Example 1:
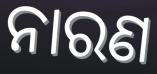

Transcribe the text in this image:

ନାରଣ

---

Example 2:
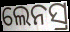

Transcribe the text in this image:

ଲେନସ୍ର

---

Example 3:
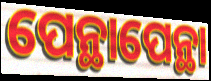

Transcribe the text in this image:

ପେନ୍ଥାପେନ୍ଥା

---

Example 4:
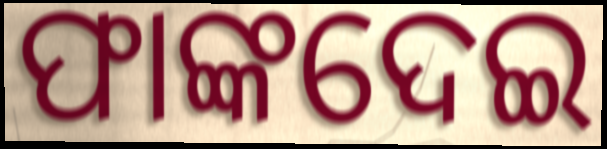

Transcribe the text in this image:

ଫାଙ୍କଦେଇ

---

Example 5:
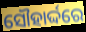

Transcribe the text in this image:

ସୌହାର୍ଦ୍ଦରେ